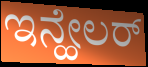
ಇನ್ಹೇಲರ್